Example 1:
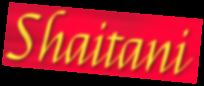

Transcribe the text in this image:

Shaitani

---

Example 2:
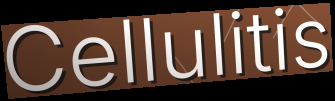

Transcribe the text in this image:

Cellulitis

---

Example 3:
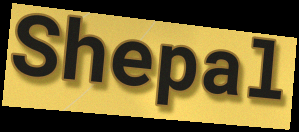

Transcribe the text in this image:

Shepal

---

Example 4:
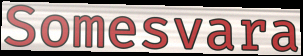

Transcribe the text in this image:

Somesvara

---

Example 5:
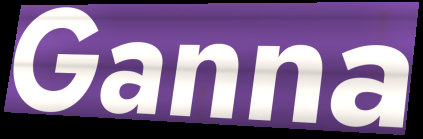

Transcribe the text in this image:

Ganna